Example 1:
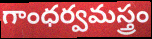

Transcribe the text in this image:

గాంధర్వమస్త్రం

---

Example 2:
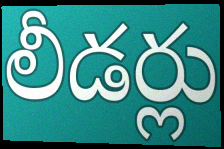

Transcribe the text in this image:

లీడర్లు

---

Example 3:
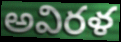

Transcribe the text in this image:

అవిరళ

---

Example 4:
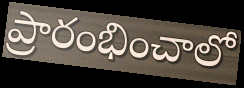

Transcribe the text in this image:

ప్రారంభించాలో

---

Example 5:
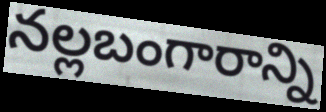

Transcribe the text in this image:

నల్లబంగారాన్ని